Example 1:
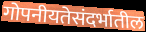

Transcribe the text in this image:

गोपनीयतेसंदर्भातील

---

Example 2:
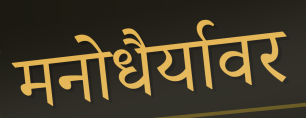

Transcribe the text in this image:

मनोधैर्यावर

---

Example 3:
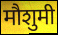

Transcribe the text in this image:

मौशुमी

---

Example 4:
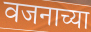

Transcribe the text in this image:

वजनाच्या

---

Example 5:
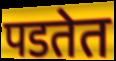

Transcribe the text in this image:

पडतेत